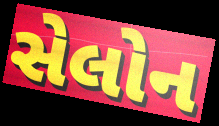
સેલોન